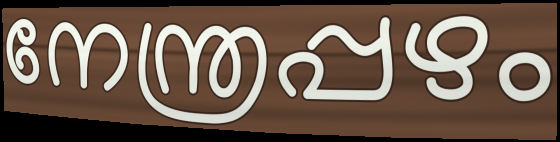
നേന്ത്രപ്പഴം